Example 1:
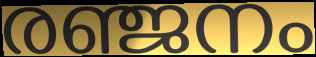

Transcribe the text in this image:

രഞ്ജനം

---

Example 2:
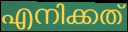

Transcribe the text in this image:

എനിക്കത്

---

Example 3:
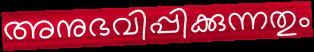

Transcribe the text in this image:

അനുഭവിപ്പിക്കുന്നതും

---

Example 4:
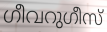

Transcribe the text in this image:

ഗീവറുഗീസ്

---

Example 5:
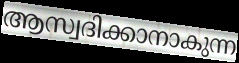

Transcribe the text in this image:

ആസ്വദിക്കാനാകുന്ന